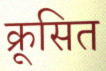
क्रूसित